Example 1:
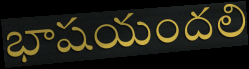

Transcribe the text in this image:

భాషయందలి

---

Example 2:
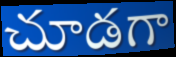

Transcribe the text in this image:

చూడగా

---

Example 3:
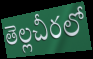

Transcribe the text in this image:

తెల్లచీరలో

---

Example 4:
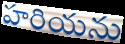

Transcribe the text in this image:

హరియను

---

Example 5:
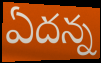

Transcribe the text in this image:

ఏదన్న